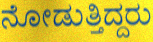
ನೋಡುತ್ತಿದ್ದರು